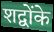
शद्वोंके